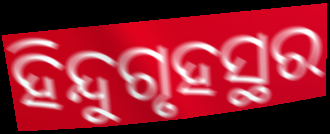
ହିନ୍ଦୁଗୃହସ୍ଥର